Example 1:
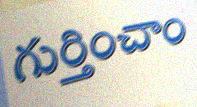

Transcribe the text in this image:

గుర్తించాం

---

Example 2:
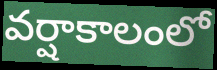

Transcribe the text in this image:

వర్షాకాలంలో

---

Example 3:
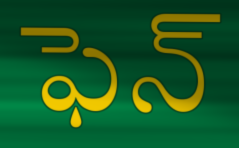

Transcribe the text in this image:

ఫెన్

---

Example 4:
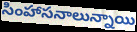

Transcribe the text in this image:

సింహాసనాలున్నాయి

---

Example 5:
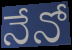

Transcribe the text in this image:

నేనో